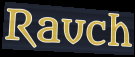
Rauch